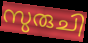
സുരുചി